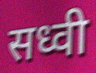
सध्वी